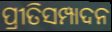
ପ୍ରୀତିସମ୍ପାଦନ